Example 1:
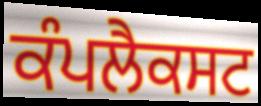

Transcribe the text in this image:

ਕੰਪਲੈਕਸਟ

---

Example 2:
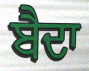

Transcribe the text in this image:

ਬੈਦਾ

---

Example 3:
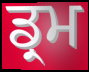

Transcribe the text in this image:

ਡ੍ਰਮ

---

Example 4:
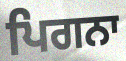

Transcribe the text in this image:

ਪਿਗਨਾ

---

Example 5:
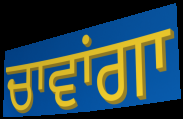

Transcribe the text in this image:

ਚਾਵਾਂਗਾ